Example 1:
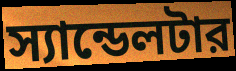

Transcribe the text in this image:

স্যান্ডেলটার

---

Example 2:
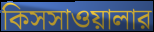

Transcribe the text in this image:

কিসসাওয়ালার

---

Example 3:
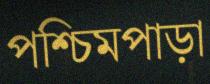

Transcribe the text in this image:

পশ্চিমপাড়া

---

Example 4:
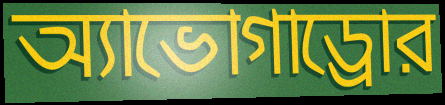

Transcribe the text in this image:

অ্যাভোগাড্রোর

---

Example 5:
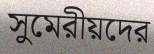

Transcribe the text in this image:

সুমেরীয়দের